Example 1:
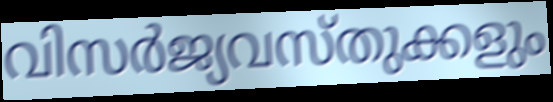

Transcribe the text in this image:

വിസർജ്യവസ്തുക്കളും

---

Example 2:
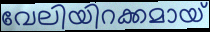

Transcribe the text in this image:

വേലിയിറക്കമായ്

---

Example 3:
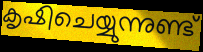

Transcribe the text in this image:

കൃഷിചെയ്യുന്നുണ്ട്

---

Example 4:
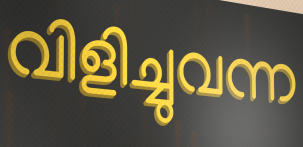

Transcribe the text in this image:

വിളിച്ചുവന്ന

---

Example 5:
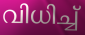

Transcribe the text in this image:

വിധിച്ച്